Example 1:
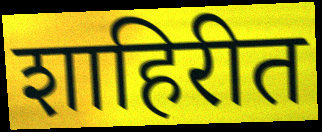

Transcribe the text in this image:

शाहिरीत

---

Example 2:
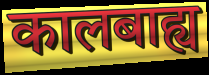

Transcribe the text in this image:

कालबाह्य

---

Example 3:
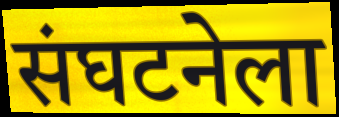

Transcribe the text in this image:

संघटनेला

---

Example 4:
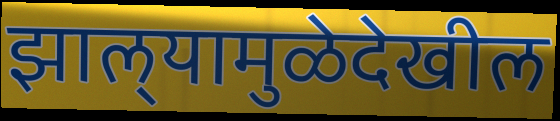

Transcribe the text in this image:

झाल्यामुळेदेखील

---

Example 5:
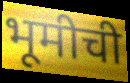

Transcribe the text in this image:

भूमीची